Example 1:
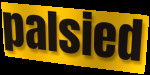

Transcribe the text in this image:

palsied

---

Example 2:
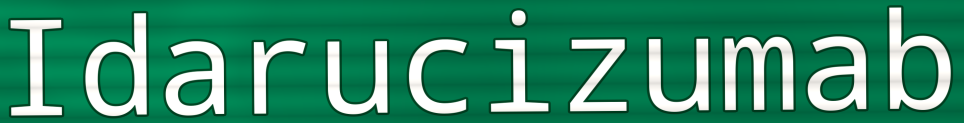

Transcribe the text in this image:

Idarucizumab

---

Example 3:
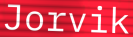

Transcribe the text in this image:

Jorvik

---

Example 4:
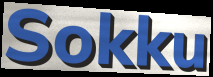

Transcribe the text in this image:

Sokku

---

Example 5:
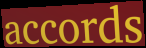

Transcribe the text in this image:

accords